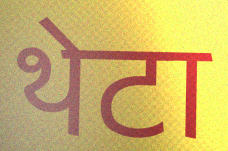
थेटा